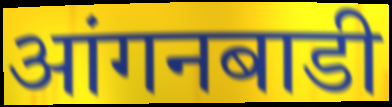
आंगनबाडी